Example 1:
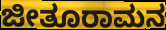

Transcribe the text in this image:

ಜೀತೂರಾಮನ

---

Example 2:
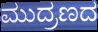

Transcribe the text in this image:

ಮುದ್ರಣದ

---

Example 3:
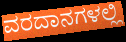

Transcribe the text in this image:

ವರದಾನಗಳಲ್ಲಿ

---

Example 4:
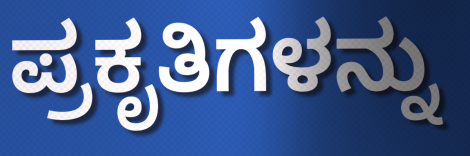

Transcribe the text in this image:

ಪ್ರಕೃತಿಗಳನ್ನು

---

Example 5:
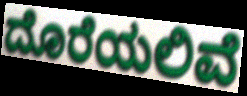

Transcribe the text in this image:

ದೊರೆಯಲಿವೆ